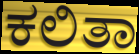
ಕಲಿತಾ